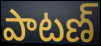
పాటణ్